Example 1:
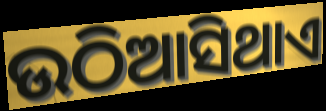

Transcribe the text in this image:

ଉଠିଆସିଥାଏ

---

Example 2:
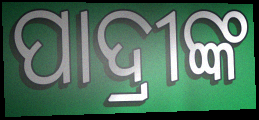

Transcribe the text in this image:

ପାଦ୍ରୀଙ୍କ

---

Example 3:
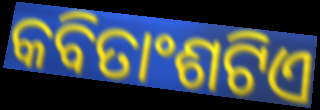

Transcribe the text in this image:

କବିତାଂଶଟିଏ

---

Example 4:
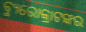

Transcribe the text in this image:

ବ୍ୟୁରୋକ୍ରାଟଙ୍କର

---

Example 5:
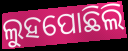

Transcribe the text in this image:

ଲୁହପୋଛିଲି